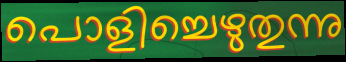
പൊളിച്ചെഴുതുന്നു